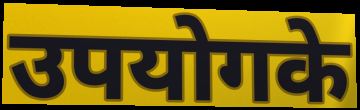
उपयोगके